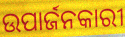
ଉପାର୍ଜନକାରୀ